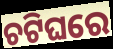
ଚଟିଘରେ